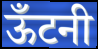
ऊँटनी